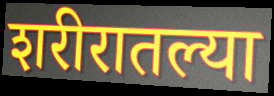
शरीरातल्या